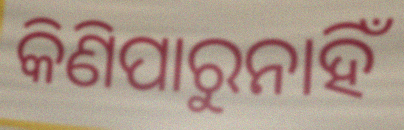
କିଣିପାରୁନାହିଁ